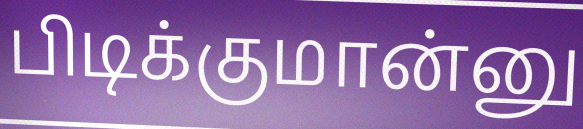
பிடிக்குமான்னு